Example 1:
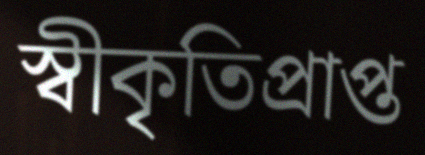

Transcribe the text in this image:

স্বীকৃতিপ্ৰাপ্ত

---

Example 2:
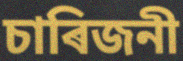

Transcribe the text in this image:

চাৰিজনী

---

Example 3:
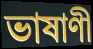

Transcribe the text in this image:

ভাষাণী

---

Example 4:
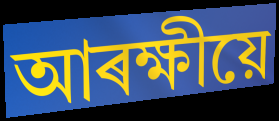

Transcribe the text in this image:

আৰক্ষীয়ে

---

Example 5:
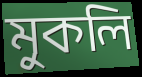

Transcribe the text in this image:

মুকলি